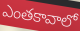
ఎంతకావాలో